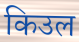
किउल